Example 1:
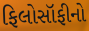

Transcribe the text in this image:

ફિલોસૉફીનો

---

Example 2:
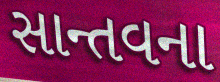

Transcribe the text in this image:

સાન્તવના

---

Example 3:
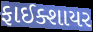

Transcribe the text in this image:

ફાઈક્શાયર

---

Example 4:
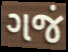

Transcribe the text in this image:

ગજં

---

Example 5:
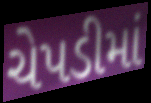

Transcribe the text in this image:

ચેપડીમાં